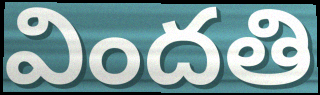
విందతి